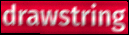
drawstring